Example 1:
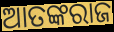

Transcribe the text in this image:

ଆତଙ୍କରାଜ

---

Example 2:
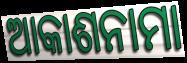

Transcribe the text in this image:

ଆକାଶନାମା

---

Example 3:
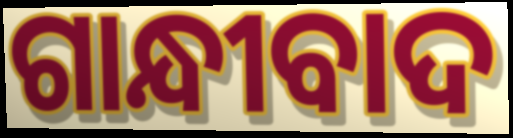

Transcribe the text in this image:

ଗାନ୍ଧୀବାଦ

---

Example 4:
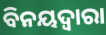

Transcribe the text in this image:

ବିନୟଦ୍ବାରା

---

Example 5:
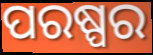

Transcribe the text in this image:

ପରଷ୍ପର